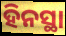
ହିନସ୍ଥା